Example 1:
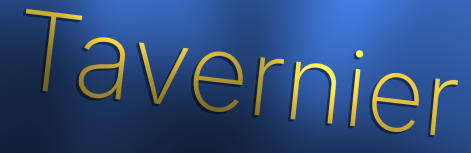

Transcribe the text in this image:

Tavernier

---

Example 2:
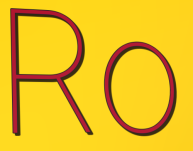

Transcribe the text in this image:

Ro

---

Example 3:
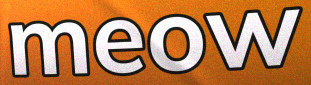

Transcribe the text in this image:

meow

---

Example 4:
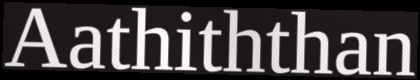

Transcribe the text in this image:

Aathiththan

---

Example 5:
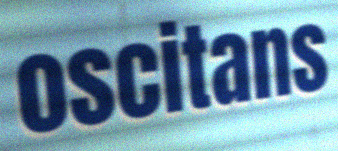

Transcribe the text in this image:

oscitans